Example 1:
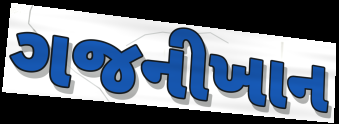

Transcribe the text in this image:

ગજનીખાન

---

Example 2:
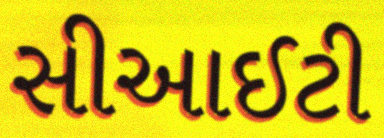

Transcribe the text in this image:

સીઆઈટી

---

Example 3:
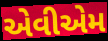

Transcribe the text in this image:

એવીએમ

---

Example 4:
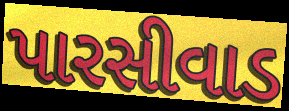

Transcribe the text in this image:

પારસીવાડ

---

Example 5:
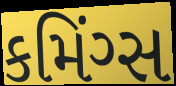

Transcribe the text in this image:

કમિંગ્સ